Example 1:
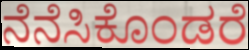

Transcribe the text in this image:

ನೆನೆಸಿಕೊಂಡರೆ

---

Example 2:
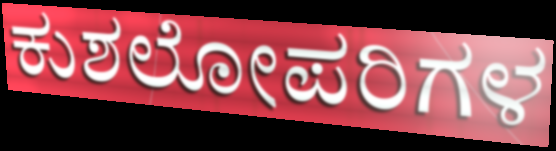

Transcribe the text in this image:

ಕುಶಲೋಪರಿಗಳ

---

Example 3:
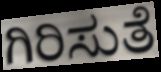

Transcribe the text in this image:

ಗಿರಿಸುತೆ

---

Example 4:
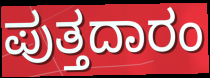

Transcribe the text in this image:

ಪುತ್ತದಾರಂ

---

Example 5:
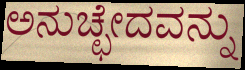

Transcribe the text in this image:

ಅನುಚ್ಛೇದವನ್ನು